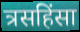
त्रसहिंसा